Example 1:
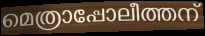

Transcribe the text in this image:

മെത്രാപ്പോലീത്തന്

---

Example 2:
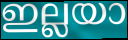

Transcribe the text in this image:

ഇല്ലയാ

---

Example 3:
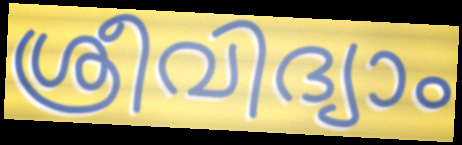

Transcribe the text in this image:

ശ്രീവിദ്യാം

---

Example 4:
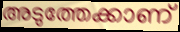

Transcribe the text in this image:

അടുത്തേക്കാണ്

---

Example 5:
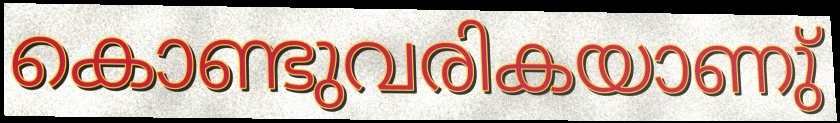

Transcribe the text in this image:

കൊണ്ടുവരികയാണു്